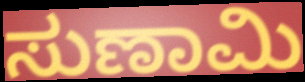
ಸುಣಾಮಿ